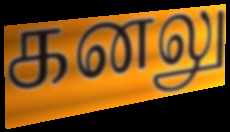
கனலு